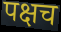
पक्षच